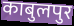
काबुलपुर